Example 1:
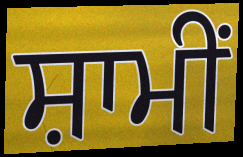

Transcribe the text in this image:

ਸ਼ਾਮੀਂ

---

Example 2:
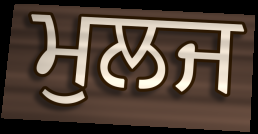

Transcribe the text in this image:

ਮੁਲਜ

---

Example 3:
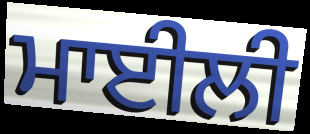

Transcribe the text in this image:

ਮਾਈਲੀ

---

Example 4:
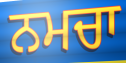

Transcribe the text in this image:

ਨਮਚਾ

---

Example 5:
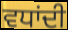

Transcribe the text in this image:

ਵਧਾਂਦੀ